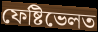
ফেষ্টিভেলত